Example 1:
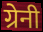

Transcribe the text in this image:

ग्रेनी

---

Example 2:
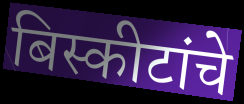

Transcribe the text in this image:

बिस्कीटांचे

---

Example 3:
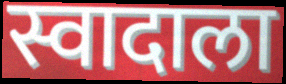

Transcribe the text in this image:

स्वादाला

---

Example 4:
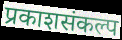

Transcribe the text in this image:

प्रकाशसंकल्प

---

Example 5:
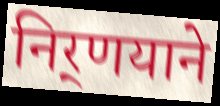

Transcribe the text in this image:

निर्णयाने